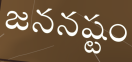
జననష్టం